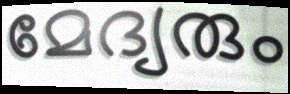
മേദ്യരും